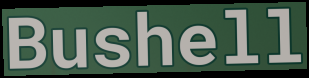
Bushell